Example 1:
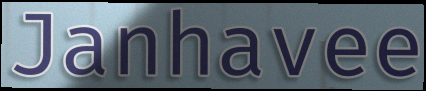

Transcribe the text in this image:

Janhavee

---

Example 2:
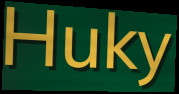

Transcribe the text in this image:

Huky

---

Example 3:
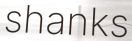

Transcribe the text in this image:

shanks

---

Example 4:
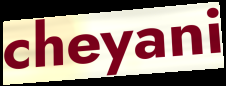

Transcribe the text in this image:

cheyani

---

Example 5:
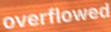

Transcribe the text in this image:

overflowed